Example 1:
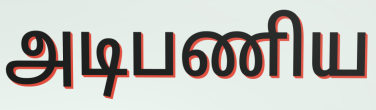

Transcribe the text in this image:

அடிபணிய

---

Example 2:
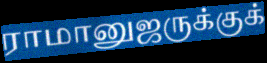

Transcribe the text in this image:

ராமானுஜருக்குக்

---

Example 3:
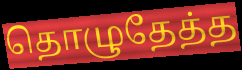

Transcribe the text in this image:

தொழுதேத்த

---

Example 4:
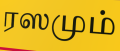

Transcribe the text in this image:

ரஸமும்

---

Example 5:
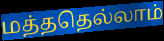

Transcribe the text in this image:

மத்ததெல்லாம்